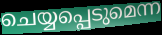
ചെയ്യപ്പെടുമെന്ന